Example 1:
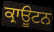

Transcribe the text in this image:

ਕ੍ਰਾਊਟਨ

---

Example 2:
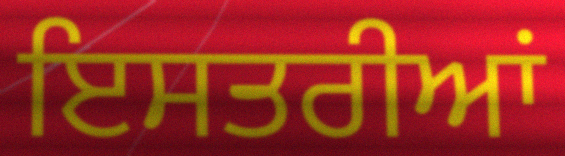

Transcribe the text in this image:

ਇਸਤਰੀਆਂ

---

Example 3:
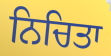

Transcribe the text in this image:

ਨਿਚਿਤਾ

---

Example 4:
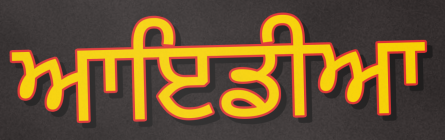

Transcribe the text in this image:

ਆਇਡੀਆ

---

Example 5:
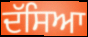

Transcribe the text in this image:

ਦੱਸਿਆ